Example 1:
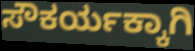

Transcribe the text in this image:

ಸೌಕರ್ಯಕ್ಕಾಗಿ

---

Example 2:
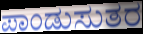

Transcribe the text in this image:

ಪಾಂಡುಸುತರ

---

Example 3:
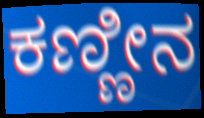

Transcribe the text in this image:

ಕಣ್ಣೀನ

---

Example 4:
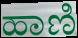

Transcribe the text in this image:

ಹಾಣಿ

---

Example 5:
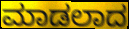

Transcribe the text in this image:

ಮಾಡಲಾದ